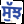
ਸੁੱਝ